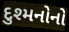
દુશ્મનોનો